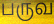
பருவ